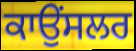
ਕਾਉਂਸਲਰ